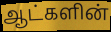
ஆட்களின்